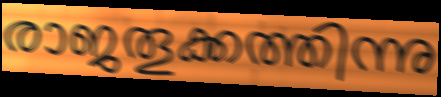
രാജതൂക്കത്തിന്നു